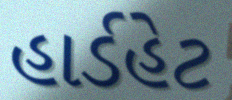
હાર્ડહેટ